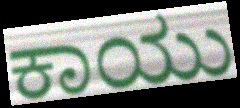
ಕಾಯು